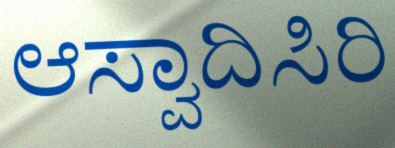
ಆಸ್ವಾದಿಸಿರಿ